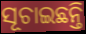
ସୂଚାଇଛନ୍ତି